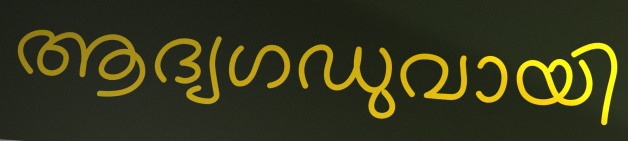
ആദ്യഗഡുവായി